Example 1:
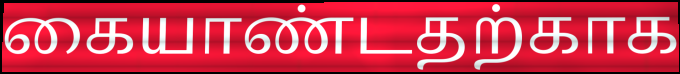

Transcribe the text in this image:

கையாண்டதற்காக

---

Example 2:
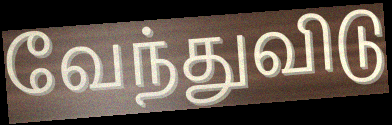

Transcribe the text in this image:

வேந்துவிடு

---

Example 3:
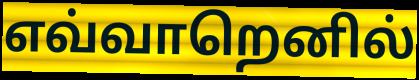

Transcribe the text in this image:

எவ்வாறெனில்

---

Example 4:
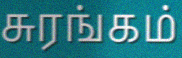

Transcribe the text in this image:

சுரங்கம்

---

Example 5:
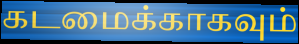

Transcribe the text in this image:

கடமைக்காகவும்